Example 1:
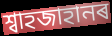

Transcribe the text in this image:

শ্বাহজাহানৰ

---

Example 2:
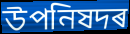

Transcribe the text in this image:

উপনিষদৰ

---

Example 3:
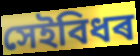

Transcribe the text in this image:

সেইবিধৰ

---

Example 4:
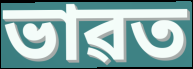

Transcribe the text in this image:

ভাৱত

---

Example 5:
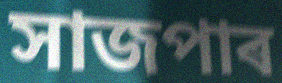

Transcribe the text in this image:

সাজপাৰ